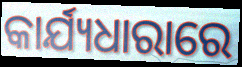
କାର୍ଯ୍ୟଧାରାରେ